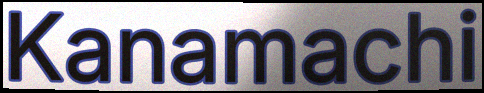
Kanamachi